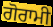
ਗੋਰਾਮੀ